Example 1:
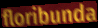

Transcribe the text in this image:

floribunda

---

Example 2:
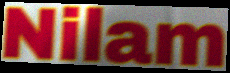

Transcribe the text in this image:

Nilam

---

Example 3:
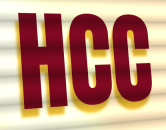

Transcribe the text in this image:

HCC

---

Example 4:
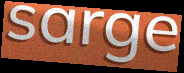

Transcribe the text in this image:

sarge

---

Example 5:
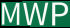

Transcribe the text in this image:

MWP